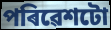
পৰিৱেশটো